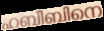
ഹബീബിനെ